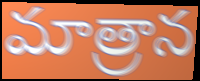
మాత్రాన